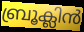
ബ്രൂക്ലിൻ